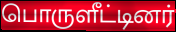
பொருளீட்டினர்